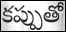
కప్పుతో